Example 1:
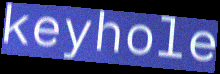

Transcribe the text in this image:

keyhole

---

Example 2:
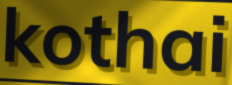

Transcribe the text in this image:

kothai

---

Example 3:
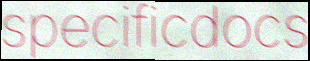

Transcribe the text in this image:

specificdocs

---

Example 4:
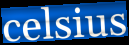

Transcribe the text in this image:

celsius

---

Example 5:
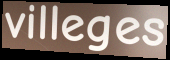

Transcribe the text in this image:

villeges